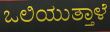
ಒಲಿಯುತ್ತಾಳೆ